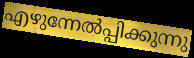
എഴുന്നേൽപ്പിക്കുന്നു